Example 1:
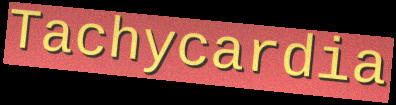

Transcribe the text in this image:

Tachycardia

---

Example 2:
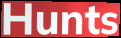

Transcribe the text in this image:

Hunts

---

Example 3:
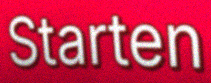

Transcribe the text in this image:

Starten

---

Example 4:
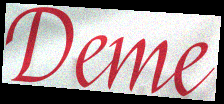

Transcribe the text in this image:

Deme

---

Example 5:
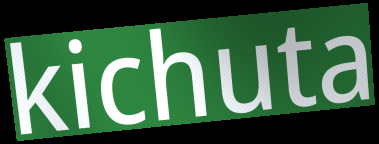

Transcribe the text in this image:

kichuta